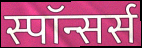
स्पॉन्सर्स